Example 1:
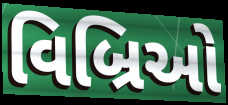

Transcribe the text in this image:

વિબ્રિઓ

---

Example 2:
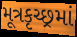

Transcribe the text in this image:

મૂત્રકૃચ્છ્રમાં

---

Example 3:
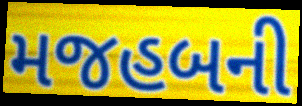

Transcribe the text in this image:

મજહબની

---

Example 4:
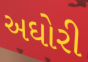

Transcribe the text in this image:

અઘોરી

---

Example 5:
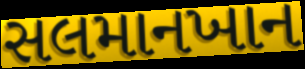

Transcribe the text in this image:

સલમાનખાન